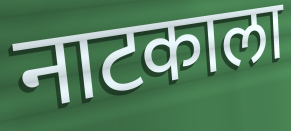
नाटकाला